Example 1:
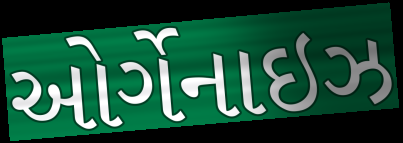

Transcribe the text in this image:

ઓર્ગેનાઇઝ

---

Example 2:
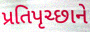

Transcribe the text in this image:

પ્રતિપૃચ્છાને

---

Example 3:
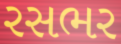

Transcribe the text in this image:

રસભર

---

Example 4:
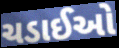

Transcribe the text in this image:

ચડાઈઓ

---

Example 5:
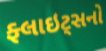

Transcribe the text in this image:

ફ્લાઇટ્સનો